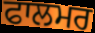
ਫਾਲਮਰ